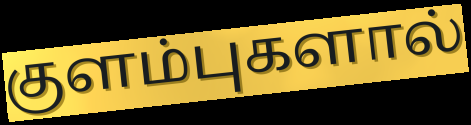
குளம்புகளால்